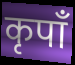
कृपाँ